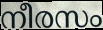
നീരസം